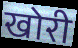
खोरी